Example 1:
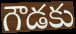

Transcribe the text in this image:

గౌడకు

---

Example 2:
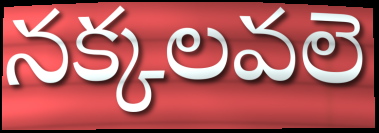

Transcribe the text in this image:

నక్కలవలె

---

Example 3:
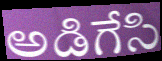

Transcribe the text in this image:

అడిగేసి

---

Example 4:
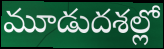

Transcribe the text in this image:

మూడుదశల్లో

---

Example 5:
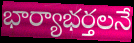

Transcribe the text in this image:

భార్యాభర్తలనే